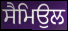
ਸੈਮਿਉਲ